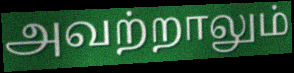
அவற்றாலும்